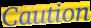
Caution